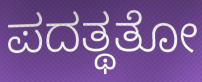
ಪದತ್ಥತೋ